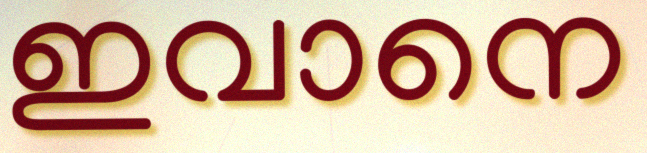
ഇവാനെ